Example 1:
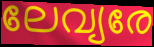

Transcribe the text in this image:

ലേവ്യരേ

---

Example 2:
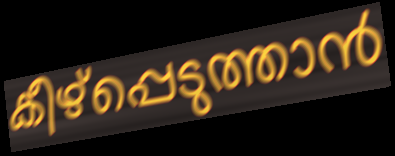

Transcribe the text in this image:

കീഴ്പ്പെടുത്താൻ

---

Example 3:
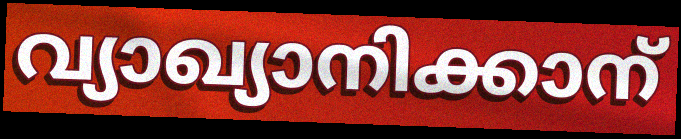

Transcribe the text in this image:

വ്യാഖ്യാനിക്കാന്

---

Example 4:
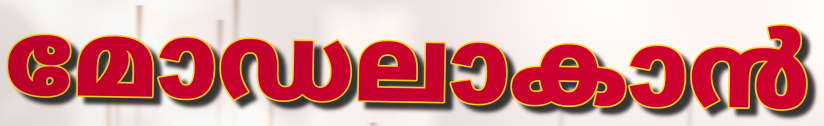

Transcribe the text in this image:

മോഡലാകാൻ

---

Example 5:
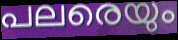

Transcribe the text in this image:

പലരെയും